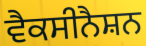
ਵੈਕਸੀਨੈਸ਼ਨ